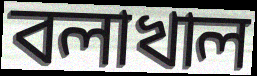
বলাখাল